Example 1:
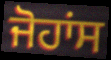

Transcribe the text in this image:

ਜੋਹਾਂਸ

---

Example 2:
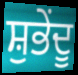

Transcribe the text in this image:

ਸ਼ੁਭੇਂਦੂ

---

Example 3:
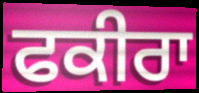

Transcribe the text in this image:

ਫਕੀਰਾ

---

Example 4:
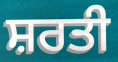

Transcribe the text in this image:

ਸ਼ਰਤੀ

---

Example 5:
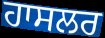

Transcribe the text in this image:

ਹਾਸਲਰ